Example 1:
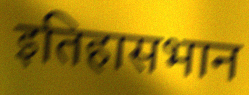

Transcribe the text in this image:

इतिहासभान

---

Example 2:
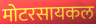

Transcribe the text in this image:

मोटरसायकल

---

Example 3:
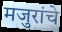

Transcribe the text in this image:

मजुरांचे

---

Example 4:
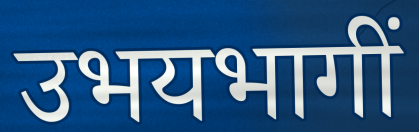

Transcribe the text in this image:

उभयभागीं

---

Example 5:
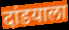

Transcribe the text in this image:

दांडयाला